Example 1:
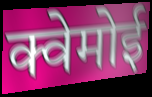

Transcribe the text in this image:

क्वेमोई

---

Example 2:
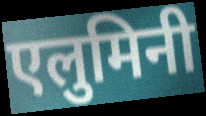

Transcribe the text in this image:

एलुमिनी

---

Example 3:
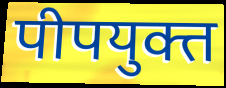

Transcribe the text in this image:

पीपयुक्त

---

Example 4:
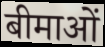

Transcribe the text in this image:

बीमाओं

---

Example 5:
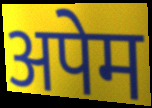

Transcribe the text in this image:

अपेम